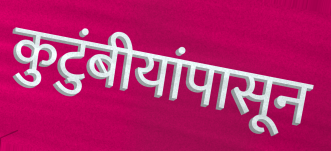
कुटुंबीयांपासून